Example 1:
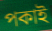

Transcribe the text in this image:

পকাই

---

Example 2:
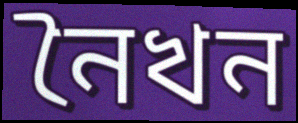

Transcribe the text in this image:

নৈখন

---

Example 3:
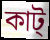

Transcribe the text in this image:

কাট্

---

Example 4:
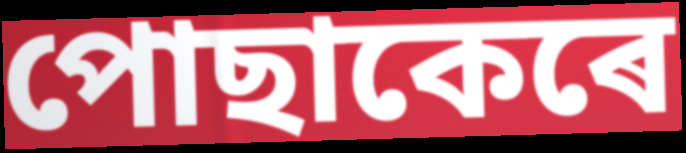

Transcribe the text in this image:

পোছাকেৰে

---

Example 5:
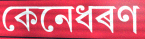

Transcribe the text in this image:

কেনেধৰণ